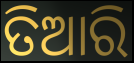
ତିଆରି